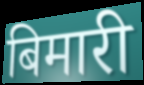
बिमारी